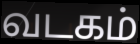
வடகம்